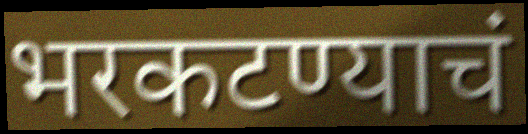
भरकटण्याचं